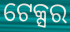
ଟେକ୍ସର